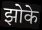
झोके